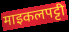
माइकलपट्टी